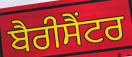
ਬੈਰੀਸੈਂਟਰ